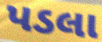
પડલા